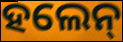
ହଲେନ୍